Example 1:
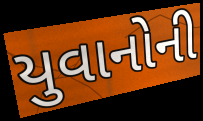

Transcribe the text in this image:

યુવાનોની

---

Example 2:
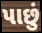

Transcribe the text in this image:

પાછું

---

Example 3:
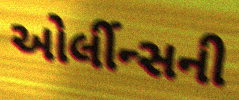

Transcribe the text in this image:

ઓર્લીન્સની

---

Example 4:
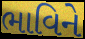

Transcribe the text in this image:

ભાવિને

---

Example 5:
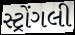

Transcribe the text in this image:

સ્ટ્રોંગલી